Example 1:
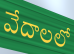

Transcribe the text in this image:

వేదాలలో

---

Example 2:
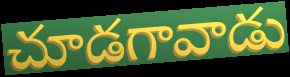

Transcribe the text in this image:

చూడగావాడు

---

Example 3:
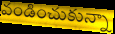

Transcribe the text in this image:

వండించుకున్నా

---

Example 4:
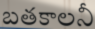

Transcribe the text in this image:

బతకాలనీ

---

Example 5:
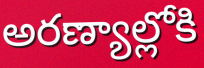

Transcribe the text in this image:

అరణ్యాల్లోకి